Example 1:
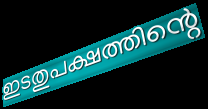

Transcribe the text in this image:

ഇടതുപക്ഷത്തിന്റെ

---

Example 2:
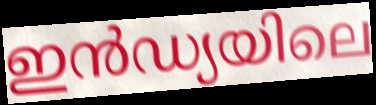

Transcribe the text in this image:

ഇൻഡ്യയിലെ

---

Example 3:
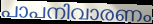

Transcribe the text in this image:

പാപനിവാരണം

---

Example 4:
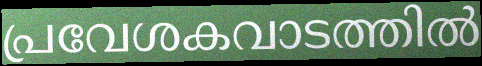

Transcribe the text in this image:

പ്രവേശകവാടത്തിൽ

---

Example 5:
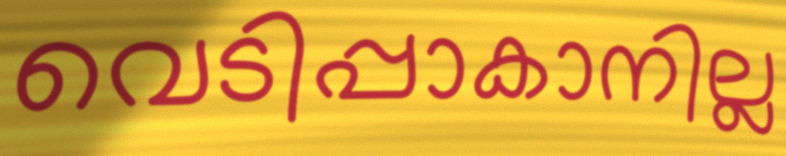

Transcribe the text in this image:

വെടിപ്പാകാനില്ല